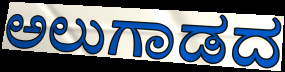
ಅಲುಗಾಡದ